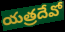
యత్రదేవో